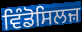
ਵਿੰਡੋਸਿਲਜ਼